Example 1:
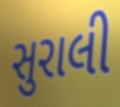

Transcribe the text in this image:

સુરાલી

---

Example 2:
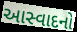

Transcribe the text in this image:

આસ્વાદનો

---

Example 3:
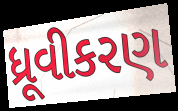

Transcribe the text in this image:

ધ્રૂવીકરણ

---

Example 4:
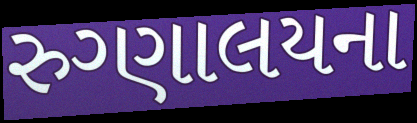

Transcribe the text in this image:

રુગ્ણાલયના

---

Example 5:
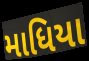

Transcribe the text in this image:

માધિયા